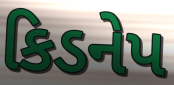
કિડનેપ